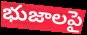
భుజాలపై